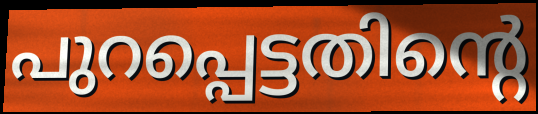
പുറപ്പെട്ടതിന്റെ